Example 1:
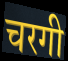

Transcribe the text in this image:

चरगी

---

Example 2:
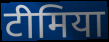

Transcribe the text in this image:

टीमिया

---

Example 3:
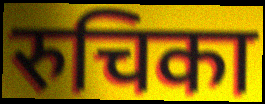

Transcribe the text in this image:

रुचिका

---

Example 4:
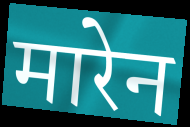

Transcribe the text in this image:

मारेन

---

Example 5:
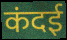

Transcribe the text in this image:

कंदई